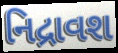
નિદ્રાવશ